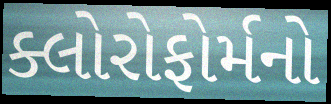
ક્લોરોફોર્મનો